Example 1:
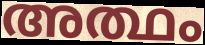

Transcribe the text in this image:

അത്ഥം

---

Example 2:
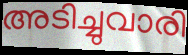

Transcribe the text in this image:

അടിച്ചുവാരി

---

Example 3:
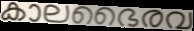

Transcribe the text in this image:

കാലഭൈരവ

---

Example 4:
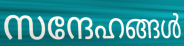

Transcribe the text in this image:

സന്ദേഹങ്ങൾ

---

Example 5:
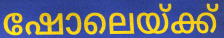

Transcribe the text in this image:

ഷോലെയ്ക്ക്